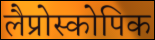
लैप्रोस्कोपिक